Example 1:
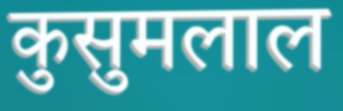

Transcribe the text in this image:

कुसुमलाल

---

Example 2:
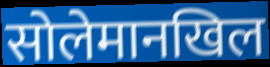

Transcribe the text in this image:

सोलेमानखिल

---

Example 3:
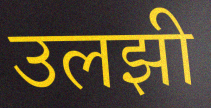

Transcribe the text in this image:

उलझी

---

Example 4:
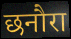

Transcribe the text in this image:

छनौरा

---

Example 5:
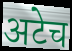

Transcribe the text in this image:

अटेच